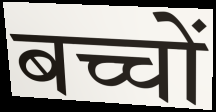
बच्‍चों